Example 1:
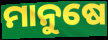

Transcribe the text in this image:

ମାନୁଷେ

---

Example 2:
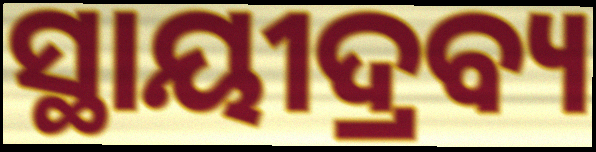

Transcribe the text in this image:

ସ୍ଥାୟୀଦ୍ରବ୍ୟ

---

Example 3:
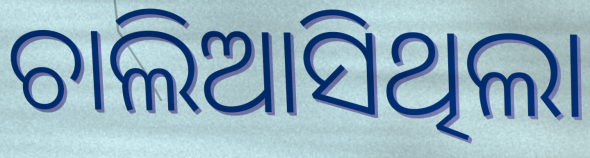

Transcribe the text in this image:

ଚାଲିଆସିଥିଲା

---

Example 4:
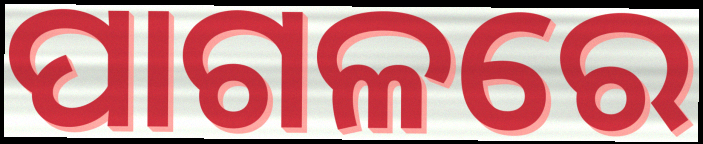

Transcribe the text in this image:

ପାଗଳରେ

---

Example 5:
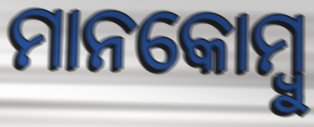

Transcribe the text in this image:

ମାନକୋମ୍ବୁ